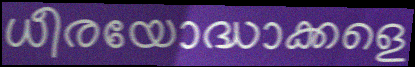
ധീരയോദ്ധാക്കളെ